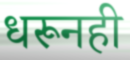
धरूनही